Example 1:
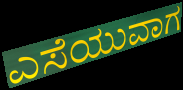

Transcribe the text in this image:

ಎಸೆಯುವಾಗ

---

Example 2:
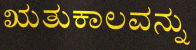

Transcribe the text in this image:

ಋತುಕಾಲವನ್ನು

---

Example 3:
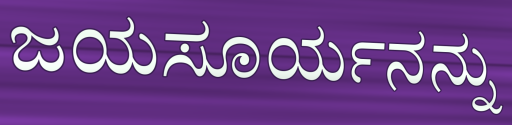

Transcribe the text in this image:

ಜಯಸೂರ್ಯನನ್ನು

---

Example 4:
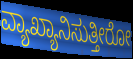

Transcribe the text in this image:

ವ್ಯಾಖ್ಯಾನಿಸುತ್ತೀರೋ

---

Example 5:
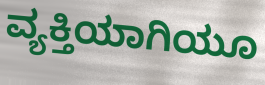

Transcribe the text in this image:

ವ್ಯಕ್ತಿಯಾಗಿಯೂ